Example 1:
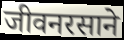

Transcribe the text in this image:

जीवनरसाने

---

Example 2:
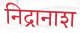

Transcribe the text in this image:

निद्रानाश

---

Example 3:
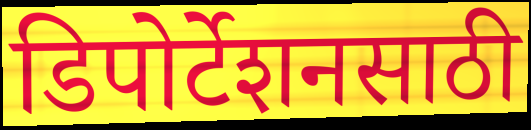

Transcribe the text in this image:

डिपोर्टेशनसाठी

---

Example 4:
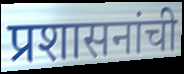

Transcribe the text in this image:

प्रशासनांची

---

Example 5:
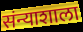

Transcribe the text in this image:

संन्याशाला